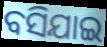
ବସିଯାଇ